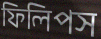
ফিলিপস